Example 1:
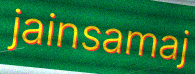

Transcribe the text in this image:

jainsamaj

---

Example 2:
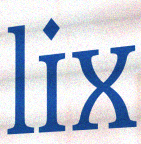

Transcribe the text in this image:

lix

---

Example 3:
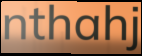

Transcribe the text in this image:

nthahj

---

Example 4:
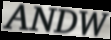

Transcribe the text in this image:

ANDW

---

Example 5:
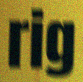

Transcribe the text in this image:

rig